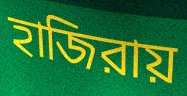
হাজিরায়